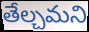
తేల్చమని